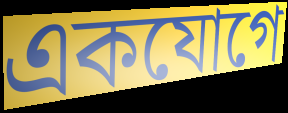
একযোগে